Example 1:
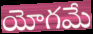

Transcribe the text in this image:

యోగమే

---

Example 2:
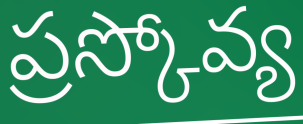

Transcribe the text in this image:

ప్రస్కోవ్య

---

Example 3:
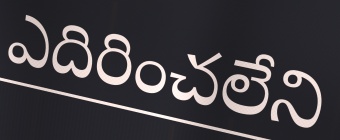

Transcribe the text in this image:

ఎదిరించలేని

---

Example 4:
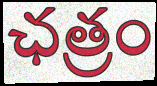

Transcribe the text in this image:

ఛత్రం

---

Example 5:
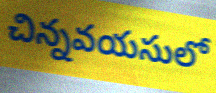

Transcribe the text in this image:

చిన్నవయసులో